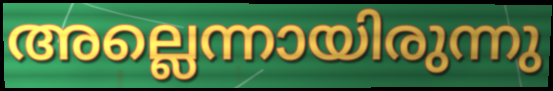
അല്ലെന്നായിരുന്നു